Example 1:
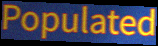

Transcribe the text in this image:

Populated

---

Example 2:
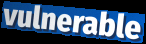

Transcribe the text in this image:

vulnerable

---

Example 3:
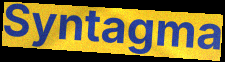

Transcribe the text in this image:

Syntagma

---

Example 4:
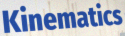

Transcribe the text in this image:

Kinematics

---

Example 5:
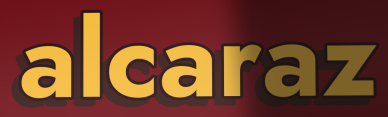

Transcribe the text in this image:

alcaraz